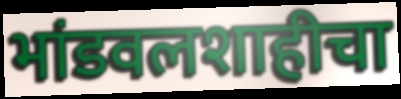
भांडवलशाहीचा